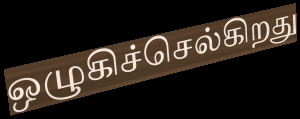
ஒழுகிச்செல்கிறது